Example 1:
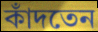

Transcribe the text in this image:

কাঁদতেন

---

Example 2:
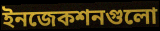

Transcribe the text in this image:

ইনজেকশনগুলো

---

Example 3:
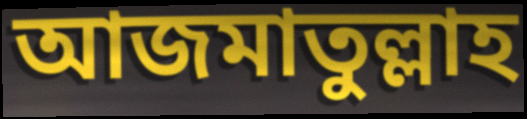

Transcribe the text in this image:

আজমাতুল্লাহ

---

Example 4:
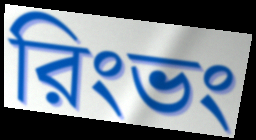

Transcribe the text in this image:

রিংভং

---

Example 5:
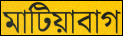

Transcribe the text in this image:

মাটিয়াবাগ